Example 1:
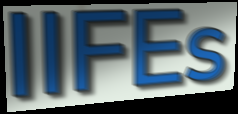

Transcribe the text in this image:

IIFEs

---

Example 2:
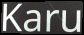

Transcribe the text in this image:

Karu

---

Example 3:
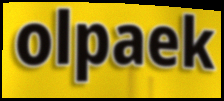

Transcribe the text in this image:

olpaek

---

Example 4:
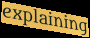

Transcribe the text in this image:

explaining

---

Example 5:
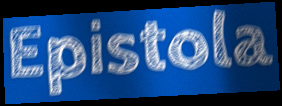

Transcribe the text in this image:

Epistola